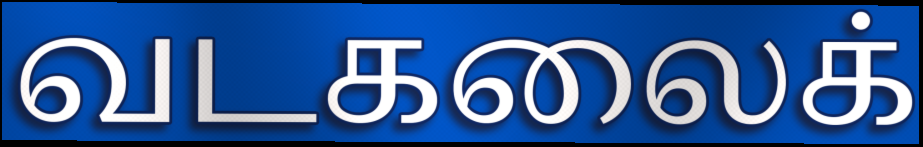
வடகலைக்